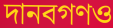
দানবগণও